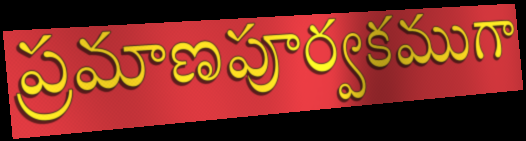
ప్రమాణపూర్వకముగా